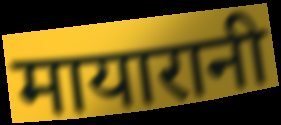
मायारानी